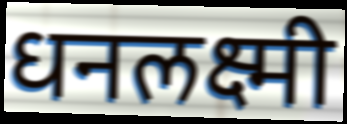
धनलक्ष्मी